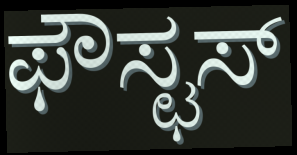
ಫೌಸ್ಟಸ್